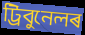
ট্ৰিবুনেলৰ